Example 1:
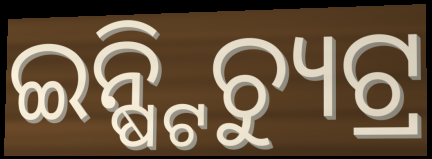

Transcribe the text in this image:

ଇନ୍ଷ୍ଟିଚ୍ୟୁଟ୍ର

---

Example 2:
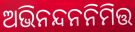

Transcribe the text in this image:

ଅଭିନନ୍ଦନନିମିତ୍ତ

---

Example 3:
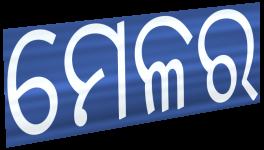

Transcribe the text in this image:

ମେଳର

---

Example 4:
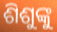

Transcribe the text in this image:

ଶିଶୁଙ୍କୁ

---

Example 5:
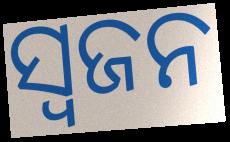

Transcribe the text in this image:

ସ୍ୱଜନ